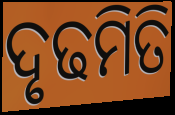
ଦୃଢମିତି